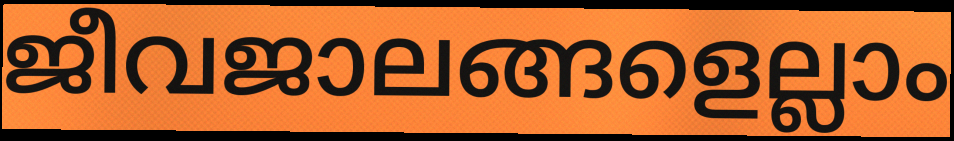
ജീവജാലങ്ങളെല്ലാം